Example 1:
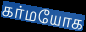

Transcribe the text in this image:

கர்மயோக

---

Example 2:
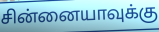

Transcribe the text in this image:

சின்னையாவுக்கு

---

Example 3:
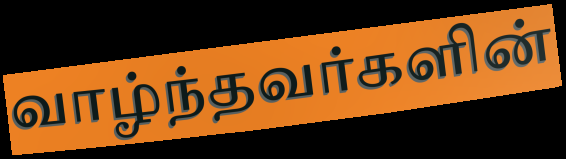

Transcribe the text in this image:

வாழ்ந்தவர்களின்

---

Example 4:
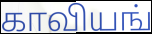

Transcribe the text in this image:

காவியங்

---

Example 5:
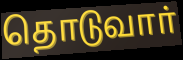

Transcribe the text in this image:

தொடுவார்